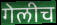
गेलीच